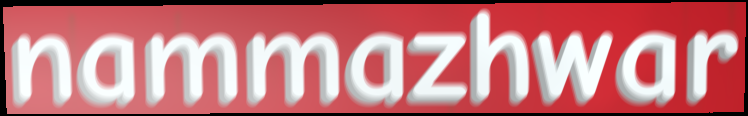
nammazhwar